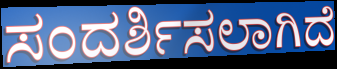
ಸಂದರ್ಶಿಸಲಾಗಿದೆ